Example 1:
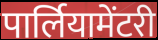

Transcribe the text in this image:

पार्लियामेंटरी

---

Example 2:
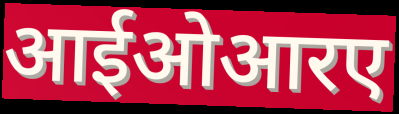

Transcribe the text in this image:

आईओआरए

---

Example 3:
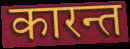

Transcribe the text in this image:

कारन्त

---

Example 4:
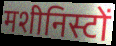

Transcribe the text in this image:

मशीनिस्टों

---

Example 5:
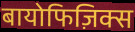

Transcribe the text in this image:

बायोफिज़िक्स